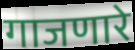
गाजणारे